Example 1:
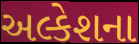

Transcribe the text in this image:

અલ્કેશના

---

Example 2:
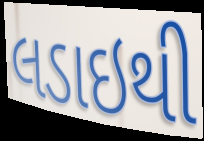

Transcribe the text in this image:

લડાઇથી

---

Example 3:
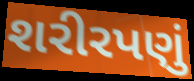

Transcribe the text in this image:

શરીરપણું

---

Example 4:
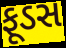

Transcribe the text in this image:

ફૂડસ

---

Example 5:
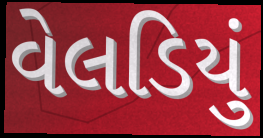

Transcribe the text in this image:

વેલડિયું